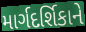
માર્ગદર્શિકાને